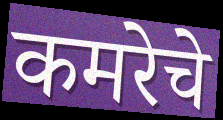
कमरेचे